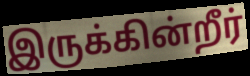
இருக்கின்றீர்